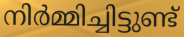
നിർമ്മിച്ചിട്ടുണ്ട്